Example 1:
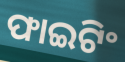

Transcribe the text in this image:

ଫାଇଟିଂ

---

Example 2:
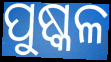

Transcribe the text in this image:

ପୁଷ୍କଳ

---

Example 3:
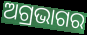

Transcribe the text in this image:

ଅଗ୍ରଭାଗର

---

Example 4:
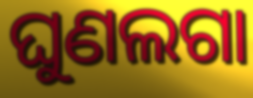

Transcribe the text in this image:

ଘୁଣଲଗା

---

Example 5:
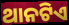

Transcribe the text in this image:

ଥାନଟିଏ